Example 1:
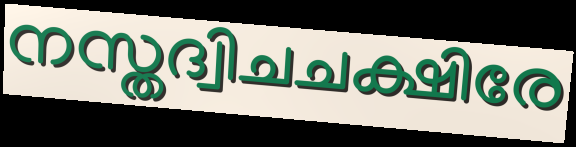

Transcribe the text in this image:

നസ്തദ്വിചചക്ഷിരേ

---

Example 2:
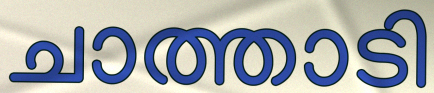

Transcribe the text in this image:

ചാത്താടി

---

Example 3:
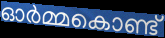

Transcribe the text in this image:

ഓർമ്മകൊണ്ട്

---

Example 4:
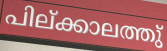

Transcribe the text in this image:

പില്ക്കാലത്തു്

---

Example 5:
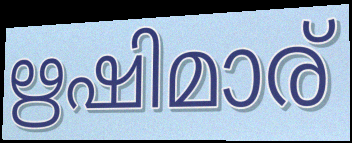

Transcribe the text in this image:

ഋഷിമാര്